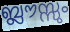
ബ്ലൗസ്സും